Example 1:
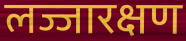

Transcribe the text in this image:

लज्जारक्षण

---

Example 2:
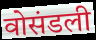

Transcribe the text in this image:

वोसंडली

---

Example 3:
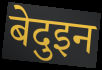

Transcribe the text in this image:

बेदुइन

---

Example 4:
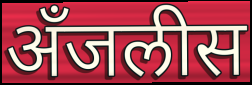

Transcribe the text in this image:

अँजलीस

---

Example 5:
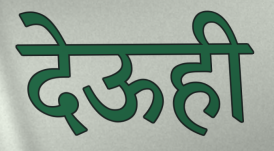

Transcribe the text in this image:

देऊही